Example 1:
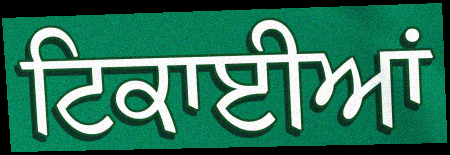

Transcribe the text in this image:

ਟਿਕਾਈਆਂ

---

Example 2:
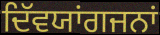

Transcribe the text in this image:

ਦਿੱਵਯਾਂਗਜਨਾਂ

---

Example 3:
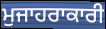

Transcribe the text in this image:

ਮੁਜਾਹਰਾਕਾਰੀ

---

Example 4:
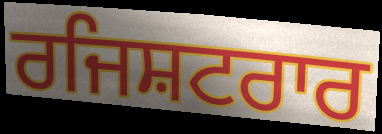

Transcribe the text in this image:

ਰਜਿਸ਼ਟਰਾਰ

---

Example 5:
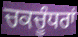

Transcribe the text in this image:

ਚਕਚੂੰਧਰਾਂ